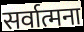
सर्वात्मना